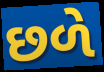
છળે